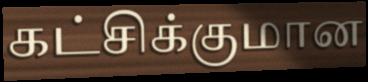
கட்சிக்குமான